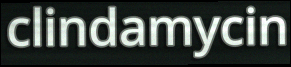
clindamycin